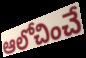
ఆలోచించే